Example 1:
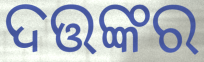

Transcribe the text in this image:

ଦତ୍ତଙ୍କର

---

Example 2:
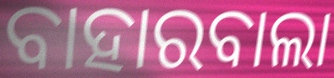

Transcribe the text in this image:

ବାହାରବାଲା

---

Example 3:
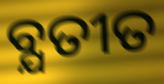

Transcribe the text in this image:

ବ୍ଯତୀତ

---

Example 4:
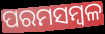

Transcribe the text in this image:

ପରମସମ୍ବଳ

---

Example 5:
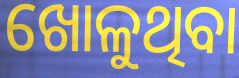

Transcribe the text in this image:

ଖୋଳୁଥିବା